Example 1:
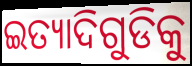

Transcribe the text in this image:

ଇତ୍ୟାଦିଗୁଡିକୁ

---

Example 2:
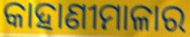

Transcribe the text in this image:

କାହାଣୀମାଳାର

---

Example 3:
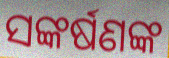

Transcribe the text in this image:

ସଙ୍କର୍ଷଣଙ୍କ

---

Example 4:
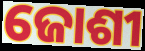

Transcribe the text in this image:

ଜୋଶୀ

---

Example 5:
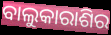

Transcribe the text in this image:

ବାଲୁକାରାଶିର